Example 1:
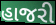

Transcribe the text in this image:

હાજરી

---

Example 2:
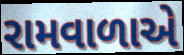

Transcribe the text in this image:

રામવાળાએ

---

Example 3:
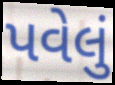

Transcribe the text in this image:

પવેલું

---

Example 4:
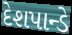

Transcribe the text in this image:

દેશપાન્ડે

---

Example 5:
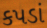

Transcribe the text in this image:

કપડાં